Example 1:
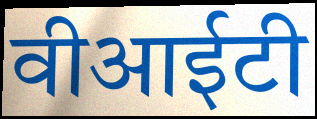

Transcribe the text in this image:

वीआईटी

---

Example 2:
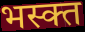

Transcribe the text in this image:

भस्क्त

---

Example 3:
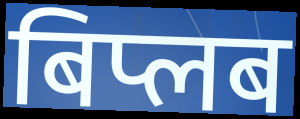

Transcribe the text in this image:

बिप्लब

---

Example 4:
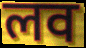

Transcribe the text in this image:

लव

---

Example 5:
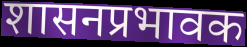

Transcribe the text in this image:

शासनप्रभावक